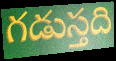
గడుస్తది